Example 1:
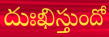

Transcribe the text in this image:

దుఃఖిస్తుందో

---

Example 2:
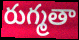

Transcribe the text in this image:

రుగ్మతా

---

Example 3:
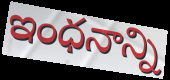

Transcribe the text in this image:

ఇంధనాన్ని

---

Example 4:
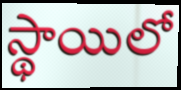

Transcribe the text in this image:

స్థాయిలో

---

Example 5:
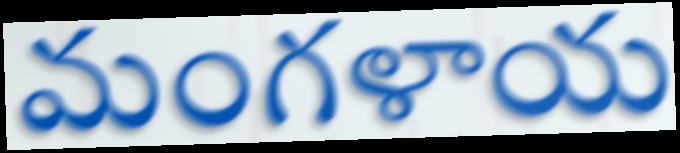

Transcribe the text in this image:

మంగళాయ